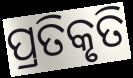
ପ୍ରତିକୃତି